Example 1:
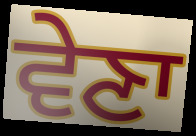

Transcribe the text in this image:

ਵੇਣਾ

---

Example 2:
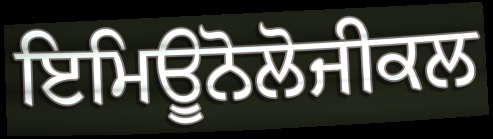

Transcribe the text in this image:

ਇਮਿਊਨੋਲੋਜੀਕਲ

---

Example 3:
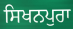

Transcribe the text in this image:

ਸਿਖਨਪੁਰਾ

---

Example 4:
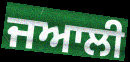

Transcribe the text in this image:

ਜਆਲੀ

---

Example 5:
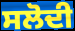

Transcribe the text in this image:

ਸਲੋਦੀ